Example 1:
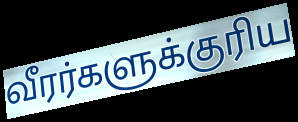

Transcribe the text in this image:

வீரர்களுக்குரிய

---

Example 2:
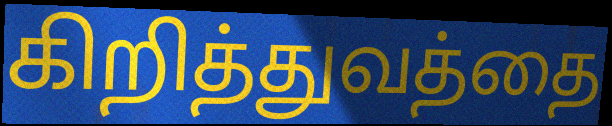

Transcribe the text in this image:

கிறித்துவத்தை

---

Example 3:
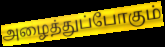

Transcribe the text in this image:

அழைத்துப்போகும்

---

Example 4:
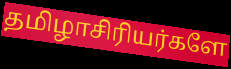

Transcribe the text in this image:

தமிழாசிரியர்களே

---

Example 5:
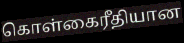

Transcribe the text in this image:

கொள்கைரீதியான